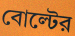
বোল্টের